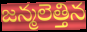
జన్మలెత్తిన